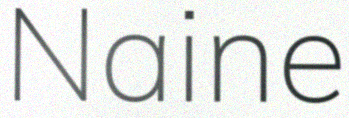
Naine